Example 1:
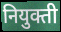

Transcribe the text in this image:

नियुक्ती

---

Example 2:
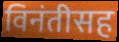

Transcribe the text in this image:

विनंतीसह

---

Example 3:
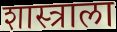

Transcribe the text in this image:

शास्त्राला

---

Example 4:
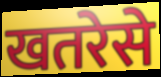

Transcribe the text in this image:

खतरेसे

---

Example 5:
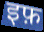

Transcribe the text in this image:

इफ़